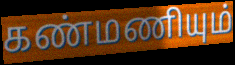
கண்மணியும்